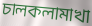
চালকলামাখা